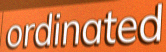
ordinated